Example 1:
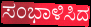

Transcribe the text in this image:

ಸಂಭಾಳಿಸಿದ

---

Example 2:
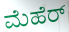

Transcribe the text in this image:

ಮೆಹೆರ್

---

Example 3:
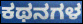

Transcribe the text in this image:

ಕಥನಗಳ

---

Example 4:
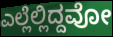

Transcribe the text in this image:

ಎಲ್ಲೆಲ್ಲಿದ್ದವೋ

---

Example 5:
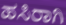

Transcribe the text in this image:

ಹಸಿರಾಗಿ